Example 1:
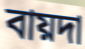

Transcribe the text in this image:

বায়দা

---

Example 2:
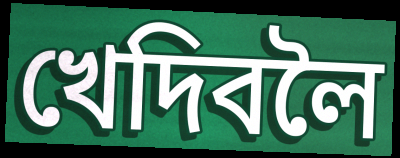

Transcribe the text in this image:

খেদিবলৈ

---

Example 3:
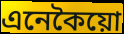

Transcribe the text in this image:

এনেকৈয়ো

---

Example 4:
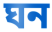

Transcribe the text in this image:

ঘন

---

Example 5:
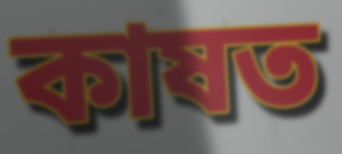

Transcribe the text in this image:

কাষত